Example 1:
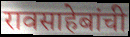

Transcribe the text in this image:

रावसाहेबांची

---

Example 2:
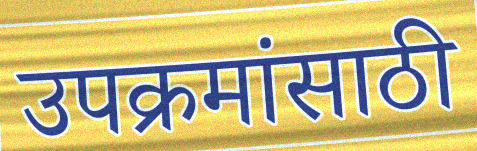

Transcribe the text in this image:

उपक्रमांसाठी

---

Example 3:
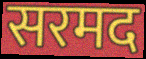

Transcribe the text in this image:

सरमद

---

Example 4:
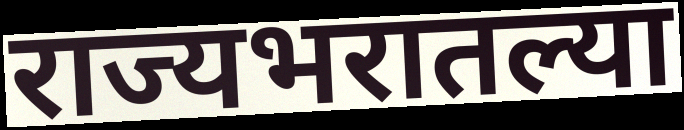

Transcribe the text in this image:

राज्यभरातल्या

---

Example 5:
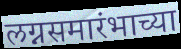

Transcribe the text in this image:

लग्नसमारंभाच्या